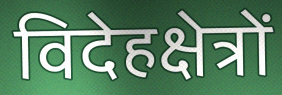
विदेहक्षेत्रों